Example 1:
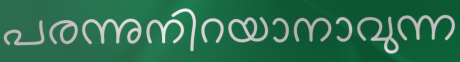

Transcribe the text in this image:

പരന്നുനിറയാനാവുന്ന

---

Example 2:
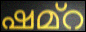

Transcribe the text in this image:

ഷമ്റ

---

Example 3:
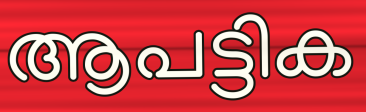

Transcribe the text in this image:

ആപട്ടിക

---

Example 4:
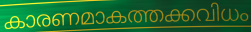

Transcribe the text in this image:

കാരണമാകത്തക്കവിധം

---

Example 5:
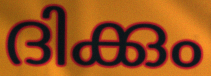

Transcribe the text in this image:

ദിക്കും